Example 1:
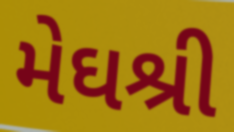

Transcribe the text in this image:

મેઘશ્રી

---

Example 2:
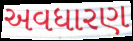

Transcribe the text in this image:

અવધારણ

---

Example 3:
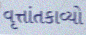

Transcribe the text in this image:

વૃત્તાંતકાવ્યો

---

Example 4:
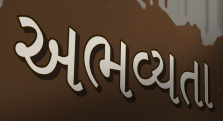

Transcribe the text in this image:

અભવ્યતા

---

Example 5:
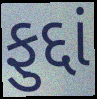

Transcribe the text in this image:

ફુદ્દાં